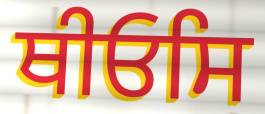
ਥੀਓਸਿ